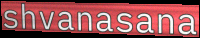
shvanasana